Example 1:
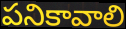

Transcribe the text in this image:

పనికావాలి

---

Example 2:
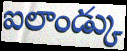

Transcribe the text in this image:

ఐలాండ్కు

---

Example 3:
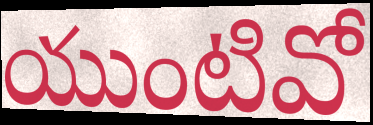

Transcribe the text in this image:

యుంటివో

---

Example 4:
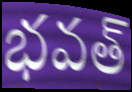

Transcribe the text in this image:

భవత్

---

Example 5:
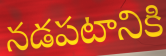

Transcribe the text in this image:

నడపటానికి